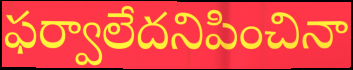
ఫర్వాలేదనిపించినా